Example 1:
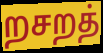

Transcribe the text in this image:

றசறத்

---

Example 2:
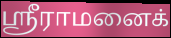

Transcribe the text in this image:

ஸ்ரீராமனைக்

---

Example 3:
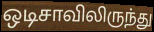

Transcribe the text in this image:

ஒடிசாவிலிருந்து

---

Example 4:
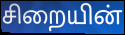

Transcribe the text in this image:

சிறையின்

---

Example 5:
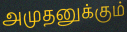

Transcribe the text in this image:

அமுதனுக்கும்